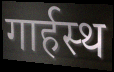
गार्हस्थ